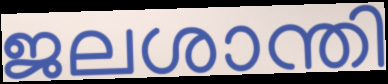
ജലശാന്തി